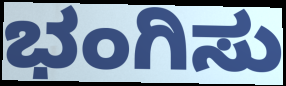
ಭಂಗಿಸು